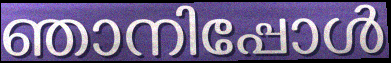
ഞാനിപ്പോൾ